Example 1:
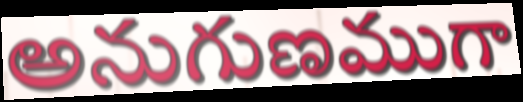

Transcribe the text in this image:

అనుగుణముగా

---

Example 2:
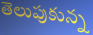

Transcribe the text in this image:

తెలుపుకున్న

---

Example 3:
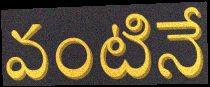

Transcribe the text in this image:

వంటినే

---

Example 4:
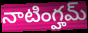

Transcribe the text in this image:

నాటింగ్హమ్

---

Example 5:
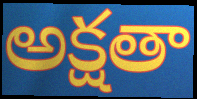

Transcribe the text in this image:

అక్షతా